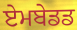
ਏਮਬੇਡਡ